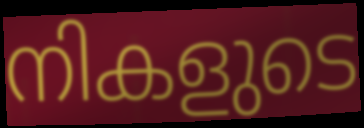
നികളുടെ